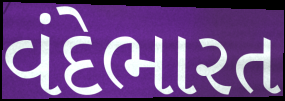
વંદેભારત